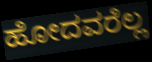
ಹೋದವರೆಲ್ಲ